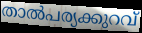
താൽപര്യക്കുറവ്